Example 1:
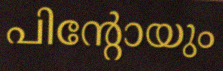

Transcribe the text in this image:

പിന്റോയും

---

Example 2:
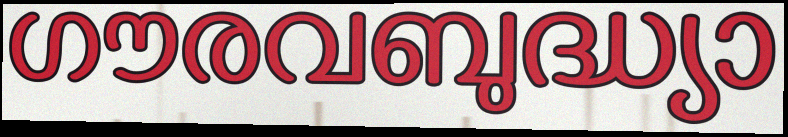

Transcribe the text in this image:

ഗൗരവബുദ്ധ്യാ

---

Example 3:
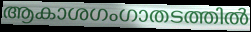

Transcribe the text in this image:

ആകാശഗംഗാതടത്തിൽ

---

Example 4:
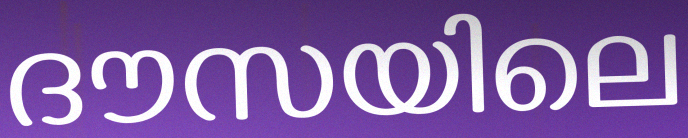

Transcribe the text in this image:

ദൗസയിലെ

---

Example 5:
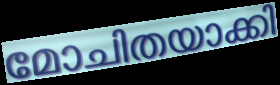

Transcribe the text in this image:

മോചിതയാക്കി